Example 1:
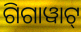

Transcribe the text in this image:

ଗିଗାୱାଟ୍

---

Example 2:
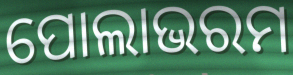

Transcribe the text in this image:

ପୋଲାଭରମ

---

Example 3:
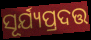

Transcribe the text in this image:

ସୂର୍ଯ୍ୟପ୍ରଦତ୍ତ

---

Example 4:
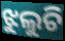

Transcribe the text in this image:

ଝୁଲୁଚି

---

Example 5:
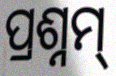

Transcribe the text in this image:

ପ୍ରଶ୍ନମ୍